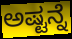
ಅಷ್ಟನ್ನೆ